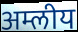
अम्‍लीय